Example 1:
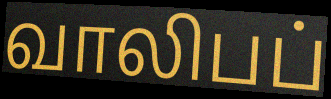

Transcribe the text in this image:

வாலிபப்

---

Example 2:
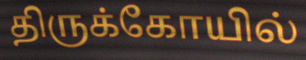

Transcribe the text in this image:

திருக்கோயில்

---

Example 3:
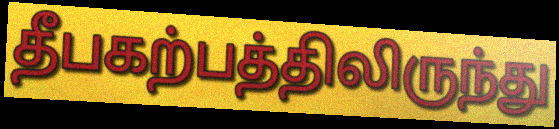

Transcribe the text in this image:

தீபகற்பத்திலிருந்து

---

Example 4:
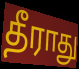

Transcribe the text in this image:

தீராது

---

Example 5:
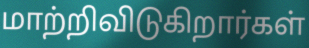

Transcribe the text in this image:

மாற்றிவிடுகிறார்கள்